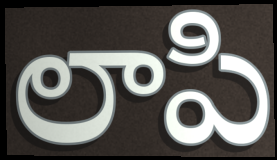
లాపి